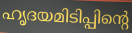
ഹൃദയമിടിപ്പിന്റെ